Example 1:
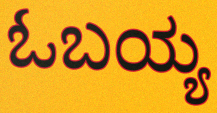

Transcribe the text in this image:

ಓಬಯ್ಯ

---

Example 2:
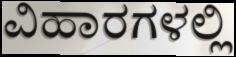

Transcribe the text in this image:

ವಿಹಾರಗಳಲ್ಲಿ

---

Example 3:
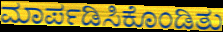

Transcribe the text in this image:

ಮಾರ್ಪಡಿಸಿಕೊಂಡಿತು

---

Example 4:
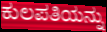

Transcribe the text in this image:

ಕುಲಪತಿಯನ್ನು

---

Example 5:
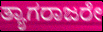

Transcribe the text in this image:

ತ್ಯಾಗರಾಜರೇ